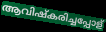
ആവിഷ്കരിച്ചപ്പോള്